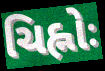
ચિહ્નોઃ